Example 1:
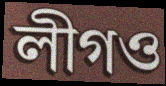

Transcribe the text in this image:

লীগও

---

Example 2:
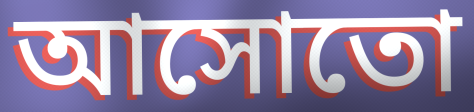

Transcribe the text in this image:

আসোতো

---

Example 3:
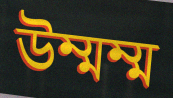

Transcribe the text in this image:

উম্মম্ম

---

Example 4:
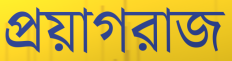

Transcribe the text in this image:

প্রয়াগরাজ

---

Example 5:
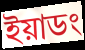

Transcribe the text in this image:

ইয়াডং